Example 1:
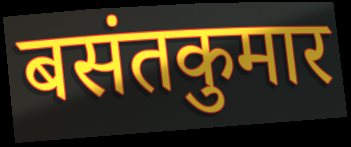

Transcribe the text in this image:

बसंतकुमार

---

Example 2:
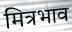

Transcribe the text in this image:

मित्रभाव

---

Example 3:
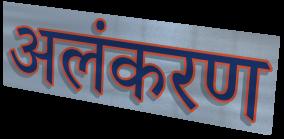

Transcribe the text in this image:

अलंकरण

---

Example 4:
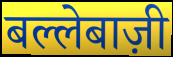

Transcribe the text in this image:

बल्लेबाज़ी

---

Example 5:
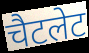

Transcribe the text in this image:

चैटलेट